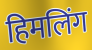
हिमलिंग